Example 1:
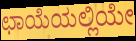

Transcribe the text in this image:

ಛಾಯೆಯಲ್ಲಿಯೇ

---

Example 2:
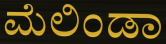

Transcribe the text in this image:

ಮೆಲಿಂಡಾ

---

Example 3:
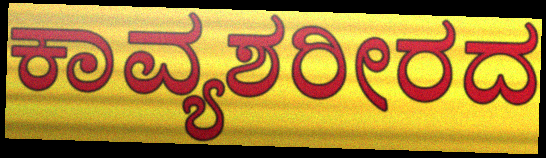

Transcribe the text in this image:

ಕಾವ್ಯಶರೀರದ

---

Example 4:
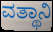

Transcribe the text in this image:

ವತ್ಥಾನಿ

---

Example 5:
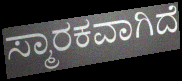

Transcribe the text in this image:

ಸ್ಮಾರಕವಾಗಿದೆ